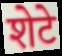
शेटे